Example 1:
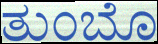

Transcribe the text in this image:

ತುಂಬೊ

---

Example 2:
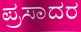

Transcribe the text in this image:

ಪ್ರಸಾದರ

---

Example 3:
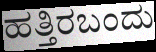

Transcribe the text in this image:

ಹತ್ತಿರಬಂದು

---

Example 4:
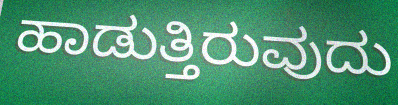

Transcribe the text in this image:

ಹಾಡುತ್ತಿರುವುದು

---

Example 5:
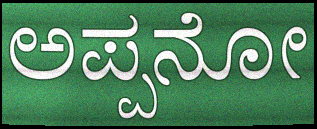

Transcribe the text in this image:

ಅಪ್ಪನೋ